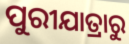
ପୁରୀଯାତ୍ରାରୁ